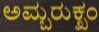
ಅಮ್ಬರುಕ್ಖಂ